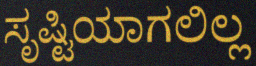
ಸೃಷ್ಟಿಯಾಗಲಿಲ್ಲ